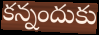
కన్నందుకు